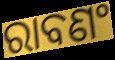
ରାବଣଂ